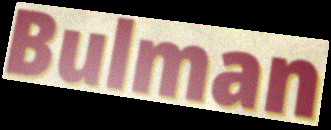
Bulman